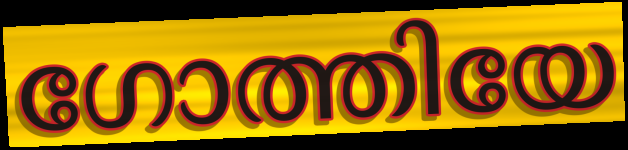
ഗോത്തിയേ